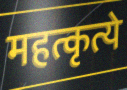
महत्कृत्ये